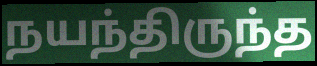
நயந்திருந்த